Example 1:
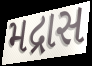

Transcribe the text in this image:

મદ્રાસ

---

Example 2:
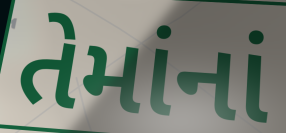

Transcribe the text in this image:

તેમાંનાં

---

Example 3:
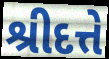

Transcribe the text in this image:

શ્રીદત્તે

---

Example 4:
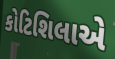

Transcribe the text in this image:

કોટિશિલાએ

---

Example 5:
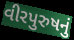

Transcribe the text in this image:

વીરપુરુષનું